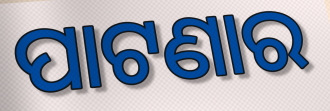
ପାଟଣାର